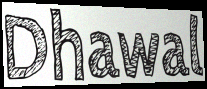
Dhawal